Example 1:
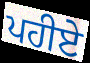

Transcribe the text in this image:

ਪਹੀਏ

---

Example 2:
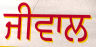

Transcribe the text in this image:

ਜੀਵਾਲ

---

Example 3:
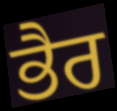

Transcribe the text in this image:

ਭੈਰ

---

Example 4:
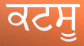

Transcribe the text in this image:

ਕਟਸੂ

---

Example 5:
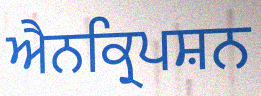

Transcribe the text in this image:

ਐਨਕ੍ਰਿਪਸ਼ਨ